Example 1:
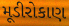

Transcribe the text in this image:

મૂડીરોકાણ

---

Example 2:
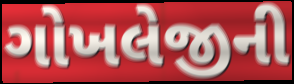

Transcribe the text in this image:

ગોખલેજીની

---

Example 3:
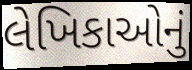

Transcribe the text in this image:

લેખિકાઓનું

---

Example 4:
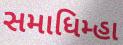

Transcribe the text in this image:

સમાધિમ્હા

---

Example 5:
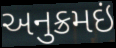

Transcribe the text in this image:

અનુક્રમઇં